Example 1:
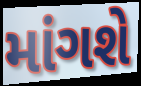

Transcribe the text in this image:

માંગશે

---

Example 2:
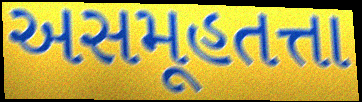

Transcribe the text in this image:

અસમૂહતત્તા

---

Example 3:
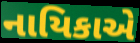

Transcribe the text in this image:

નાયિકાએ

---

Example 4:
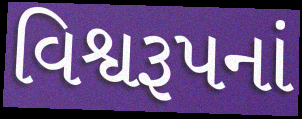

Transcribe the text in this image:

વિશ્વરૂપનાં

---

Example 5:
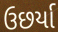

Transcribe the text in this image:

ઉછર્યા